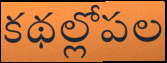
కథల్లోపల